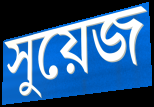
সুয়েজ